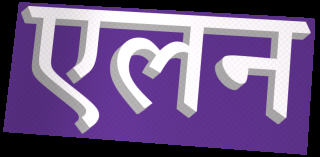
एलन